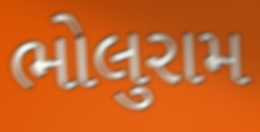
ભોલુરામ